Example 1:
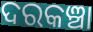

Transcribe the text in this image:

ଦରକଞ୍ଚା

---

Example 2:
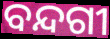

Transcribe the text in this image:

ବନ୍ଦଗୀ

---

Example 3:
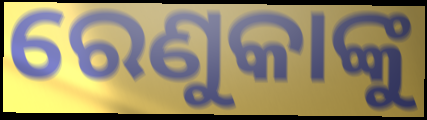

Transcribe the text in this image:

ରେଣୁକାଙ୍କୁ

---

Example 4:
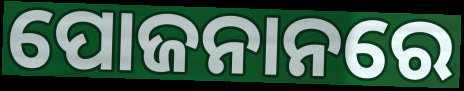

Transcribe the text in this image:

ପୋଜନାନରେ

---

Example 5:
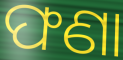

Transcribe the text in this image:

ଫଣା